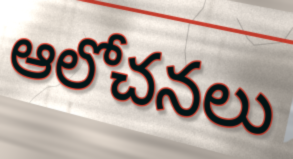
ఆలోచనలు